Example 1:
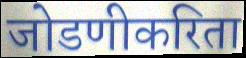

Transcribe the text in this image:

जोडणीकरिता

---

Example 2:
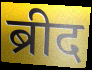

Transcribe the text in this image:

ब्रीद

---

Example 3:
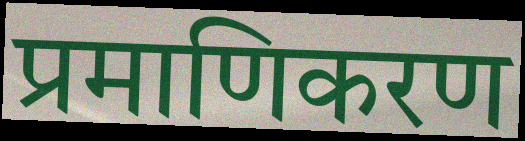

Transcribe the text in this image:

प्रमाणिकरण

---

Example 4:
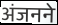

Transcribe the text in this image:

अंजनने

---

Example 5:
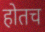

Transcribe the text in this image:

होतच